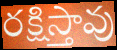
రక్షిస్తావు